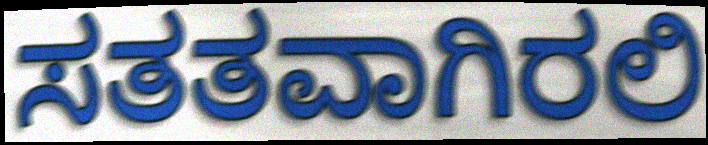
ಸತತವಾಗಿರಲಿ